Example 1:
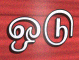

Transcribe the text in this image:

ஒடு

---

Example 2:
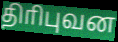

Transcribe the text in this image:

திரிபுவன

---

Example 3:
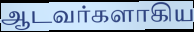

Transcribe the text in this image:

ஆடவர்களாகிய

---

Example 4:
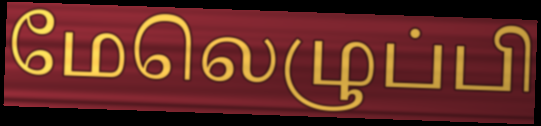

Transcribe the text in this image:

மேலெழுப்பி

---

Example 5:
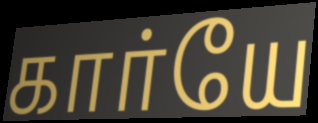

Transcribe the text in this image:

கார்யே